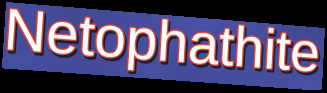
Netophathite